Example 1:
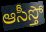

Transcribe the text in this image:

ఆసీస్తో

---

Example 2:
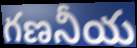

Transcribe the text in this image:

గణనీయ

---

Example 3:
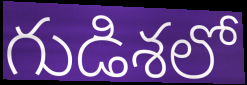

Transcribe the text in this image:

గుడిశలో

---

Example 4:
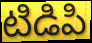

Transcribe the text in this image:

టిడిపి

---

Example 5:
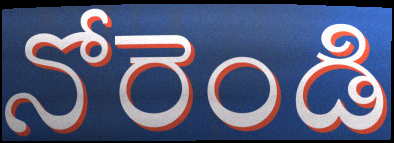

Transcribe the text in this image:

నోరెండి